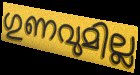
ഗുണവുമില്ല